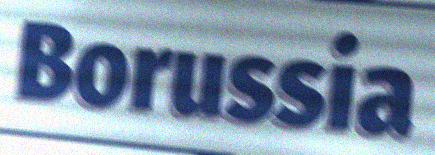
Borussia